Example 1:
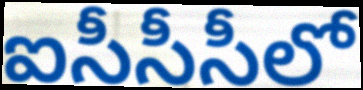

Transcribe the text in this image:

ఐసీసీసీలో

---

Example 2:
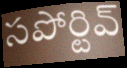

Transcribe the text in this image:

సపోర్టివ్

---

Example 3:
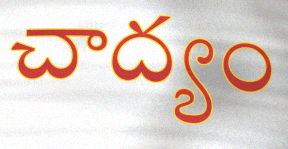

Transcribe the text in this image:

చాద్యం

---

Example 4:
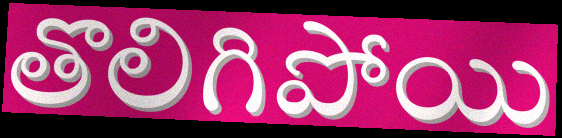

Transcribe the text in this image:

తొలిగిపోయి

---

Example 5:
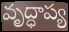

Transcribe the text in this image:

వృద్ధాప్య